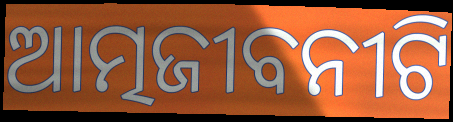
ଆତ୍ମଜୀବନୀଟି